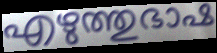
എഴുത്തുഭാഷ